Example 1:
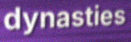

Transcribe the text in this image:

dynasties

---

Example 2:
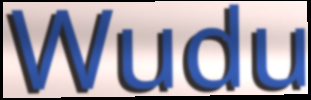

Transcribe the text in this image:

Wudu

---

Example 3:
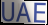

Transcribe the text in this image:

UAE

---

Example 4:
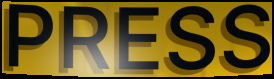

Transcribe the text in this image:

PRESS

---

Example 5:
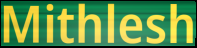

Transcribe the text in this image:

Mithlesh